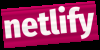
netlify